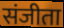
संजीता